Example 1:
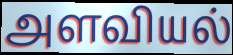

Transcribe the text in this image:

அளவியல்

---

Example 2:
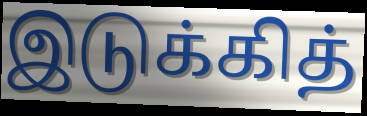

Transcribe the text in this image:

இடுக்கித்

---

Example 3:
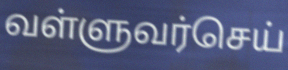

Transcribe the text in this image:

வள்ளுவர்செய்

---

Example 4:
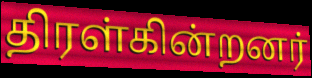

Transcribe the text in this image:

திரள்கின்றனர்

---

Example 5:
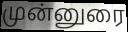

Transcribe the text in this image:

முன்னுரை